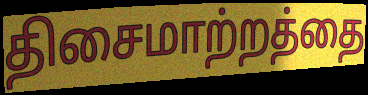
திசைமாற்றத்தை